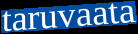
taruvaata